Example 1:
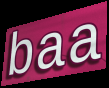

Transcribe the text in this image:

baa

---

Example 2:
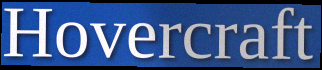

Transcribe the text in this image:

Hovercraft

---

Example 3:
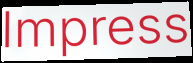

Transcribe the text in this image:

Impress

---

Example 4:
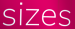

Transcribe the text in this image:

sizes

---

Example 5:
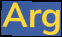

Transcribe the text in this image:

Arg